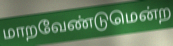
மாறவேண்டுமென்ற